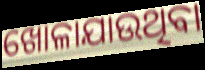
ଖୋଳାଯାଉଥିବା